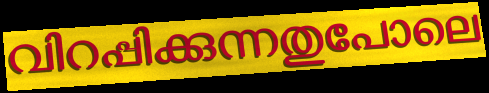
വിറപ്പിക്കുന്നതുപോലെ